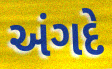
અંગદે